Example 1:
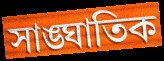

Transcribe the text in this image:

সাঙ্ঘাতিক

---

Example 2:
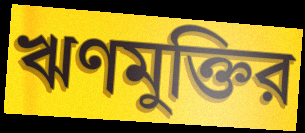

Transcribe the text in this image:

ঋণমুক্তির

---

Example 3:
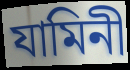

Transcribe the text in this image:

যামিনী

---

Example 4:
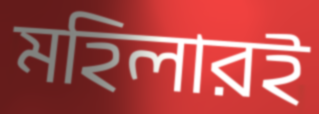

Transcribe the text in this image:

মহিলারই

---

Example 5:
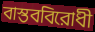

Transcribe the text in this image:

বাস্তববিরোধী